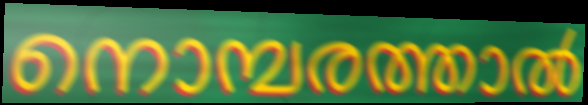
നൊമ്പരത്താൽ